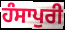
ਹੰਸਾਪੁਰੀ